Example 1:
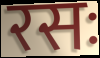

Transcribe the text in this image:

रसः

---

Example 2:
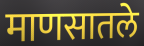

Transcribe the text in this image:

माणसातले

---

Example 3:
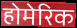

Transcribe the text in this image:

होमेरिक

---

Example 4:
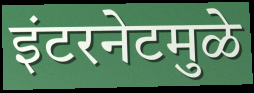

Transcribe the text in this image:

इंटरनेटमुळे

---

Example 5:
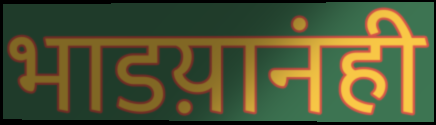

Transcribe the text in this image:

भाडय़ानंही